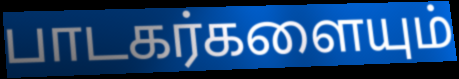
பாடகர்களையும்